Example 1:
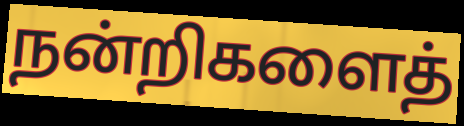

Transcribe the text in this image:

நன்றிகளைத்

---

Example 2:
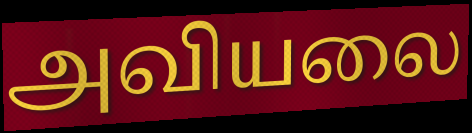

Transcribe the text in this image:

அவியலை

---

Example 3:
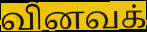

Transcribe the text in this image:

வினவக்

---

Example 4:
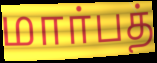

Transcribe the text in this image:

மார்பத்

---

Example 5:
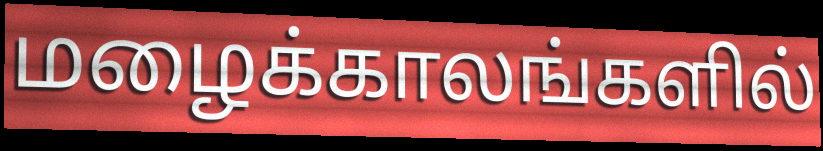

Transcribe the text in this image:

மழைக்காலங்களில்